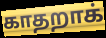
காதறாக்